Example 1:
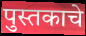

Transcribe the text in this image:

पुस्तकाचे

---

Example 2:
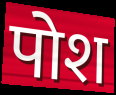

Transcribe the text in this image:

पोश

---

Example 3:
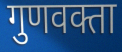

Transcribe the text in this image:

गुणवक्ता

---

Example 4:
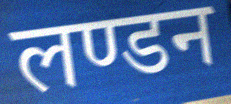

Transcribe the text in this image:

लण्डन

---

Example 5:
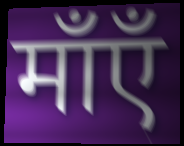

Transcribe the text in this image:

माँएँ